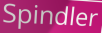
Spindler